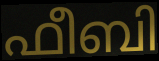
ഫീബി